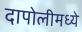
दापोलीमध्ये